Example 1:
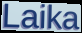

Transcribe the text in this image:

Laika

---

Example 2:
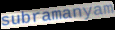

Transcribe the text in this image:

subramanyam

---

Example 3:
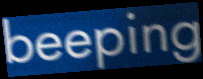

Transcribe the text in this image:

beeping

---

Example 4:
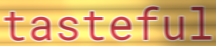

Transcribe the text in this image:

tasteful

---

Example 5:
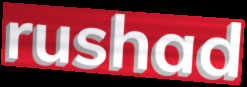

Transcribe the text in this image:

rushad